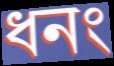
ধনং